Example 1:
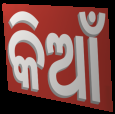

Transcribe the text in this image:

କିଆଁ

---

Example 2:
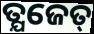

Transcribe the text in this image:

ତ୍ଯଜେତ୍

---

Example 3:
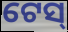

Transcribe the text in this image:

ଟେସ୍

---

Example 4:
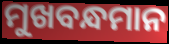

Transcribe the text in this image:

ମୁଖବନ୍ଧମାନ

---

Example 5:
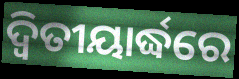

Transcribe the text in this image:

ଦ୍ଵିତୀୟାର୍ଦ୍ଧରେ